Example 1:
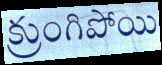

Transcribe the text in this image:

క్రుంగిపోయి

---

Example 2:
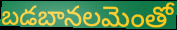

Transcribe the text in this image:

బడబానలమెంతో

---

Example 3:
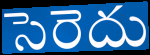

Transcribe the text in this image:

సెరెదు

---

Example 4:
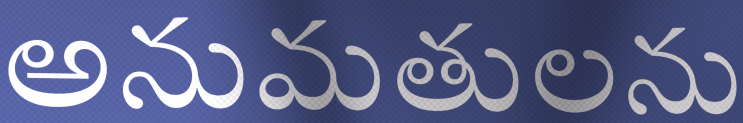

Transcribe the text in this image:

అనుమతులను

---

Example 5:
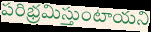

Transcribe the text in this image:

పరిభ్రమిస్తుంటాయని